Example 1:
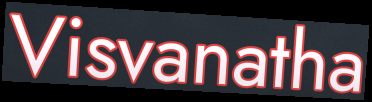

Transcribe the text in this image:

Visvanatha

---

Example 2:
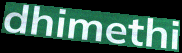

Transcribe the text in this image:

dhimethi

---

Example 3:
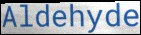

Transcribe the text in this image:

Aldehyde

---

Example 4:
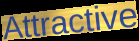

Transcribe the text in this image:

Attractive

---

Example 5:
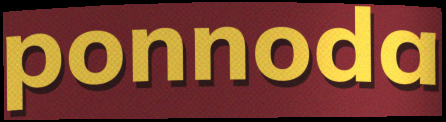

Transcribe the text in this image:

ponnoda